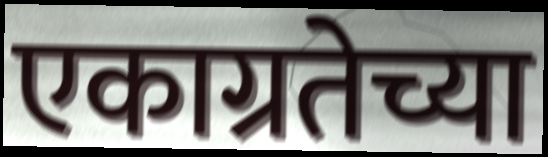
एकाग्रतेच्या